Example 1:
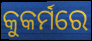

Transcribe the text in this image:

କୁକର୍ମରେ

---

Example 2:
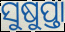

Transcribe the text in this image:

ସୁଷୁପ୍ତା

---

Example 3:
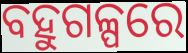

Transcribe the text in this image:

ବହୁଗଳ୍ପରେ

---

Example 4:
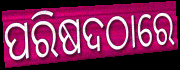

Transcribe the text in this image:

ପରିଷଦଠାରେ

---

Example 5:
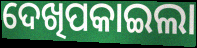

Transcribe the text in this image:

ଦେଖିପକାଇଲା